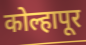
कोल्हापूर